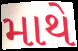
માથે